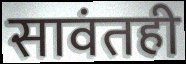
सावंतही